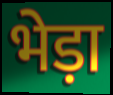
भेड़ा